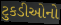
ટુકડીઓનો